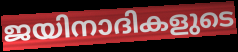
ജയിനാദികളുടെ